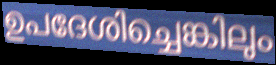
ഉപദേശിച്ചെങ്കിലും